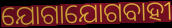
ଯୋଗାଯୋଗବାହୀ